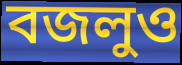
বজলুও